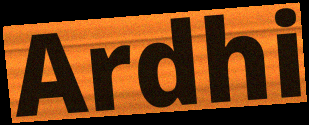
Ardhi